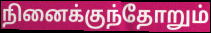
நினைக்குந்தோறும்